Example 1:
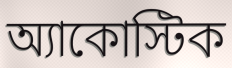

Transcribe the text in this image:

অ্যাকোস্টিক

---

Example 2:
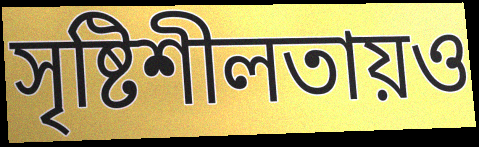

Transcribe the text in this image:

সৃষ্টিশীলতায়ও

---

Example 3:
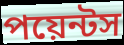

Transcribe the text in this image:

পয়েন্টস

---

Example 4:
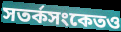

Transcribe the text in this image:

সতর্কসংকেতও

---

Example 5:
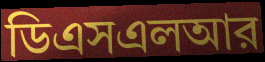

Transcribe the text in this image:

ডিএসএলআর